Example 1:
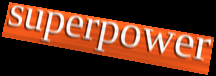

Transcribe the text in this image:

superpower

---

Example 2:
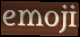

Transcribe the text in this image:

emoji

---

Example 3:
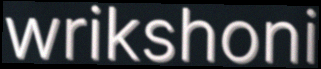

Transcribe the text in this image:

wrikshoni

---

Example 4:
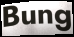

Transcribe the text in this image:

Bung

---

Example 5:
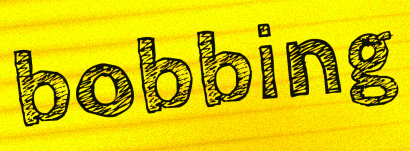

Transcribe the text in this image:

bobbing